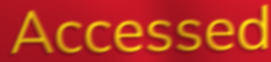
Accessed